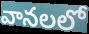
వానలలో